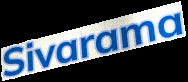
Sivarama